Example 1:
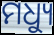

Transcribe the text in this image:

ମଧ୍ୟୁ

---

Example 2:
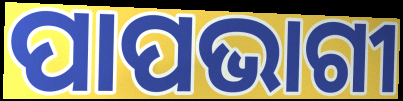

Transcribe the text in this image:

ପାପଭାଗୀ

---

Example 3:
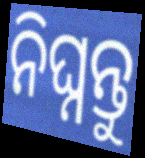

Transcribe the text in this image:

ନିଘ୍ନନ୍ତୁ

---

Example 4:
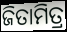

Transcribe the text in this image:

ଜିତାମିତ୍ର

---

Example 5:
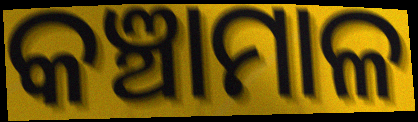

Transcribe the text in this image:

କଞ୍ଚାମାଳ